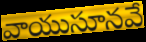
వాయుసూనవే